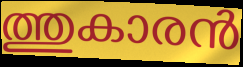
ത്തുകാരൻ